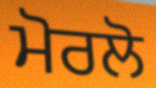
ਮੋਰਲੋ